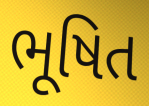
ભૂષિત